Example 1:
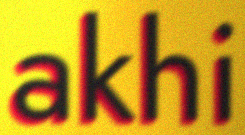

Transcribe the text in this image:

akhi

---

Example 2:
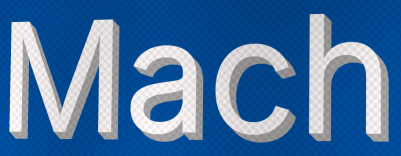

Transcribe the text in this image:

Mach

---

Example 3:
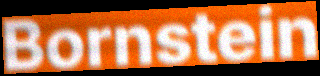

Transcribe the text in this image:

Bornstein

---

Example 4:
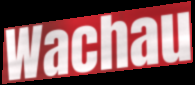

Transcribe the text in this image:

Wachau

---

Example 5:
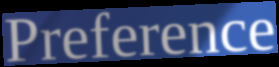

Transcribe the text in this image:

Preference